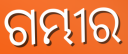
ଗମ୍ଭୀର